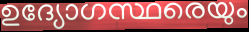
ഉദ്യോഗസ്ഥരെയും